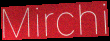
Mirchi